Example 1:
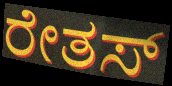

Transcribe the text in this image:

ರೇತಸ್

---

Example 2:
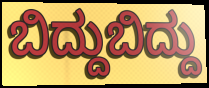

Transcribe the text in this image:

ಬಿದ್ದುಬಿದ್ದು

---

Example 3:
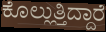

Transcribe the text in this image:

ಕೊಲ್ಲುತ್ತಿದ್ದಾರೆ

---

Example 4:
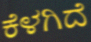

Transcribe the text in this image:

ಕೆಳಗಿದೆ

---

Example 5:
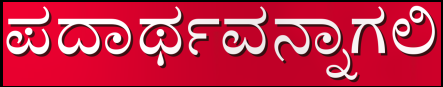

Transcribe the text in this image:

ಪದಾರ್ಥವನ್ನಾಗಲಿ